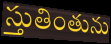
స్తుతింతును